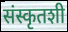
संस्कृतशी